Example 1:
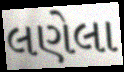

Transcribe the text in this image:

લણેલા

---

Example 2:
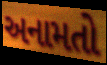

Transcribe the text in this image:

અનામતો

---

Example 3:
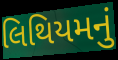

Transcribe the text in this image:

લિથિયમનું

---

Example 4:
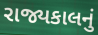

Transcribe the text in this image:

રાજ્યકાલનું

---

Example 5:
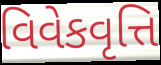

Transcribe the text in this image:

વિવેકવૃત્તિ